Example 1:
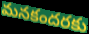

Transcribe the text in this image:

మనకందరకు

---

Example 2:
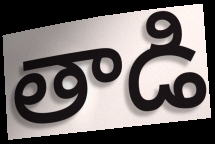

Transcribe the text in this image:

తాడి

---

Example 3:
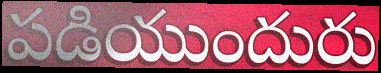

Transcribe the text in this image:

పడియుందురు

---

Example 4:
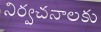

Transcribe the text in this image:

నిర్వచనాలకు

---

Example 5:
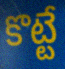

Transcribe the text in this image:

కొట్టే